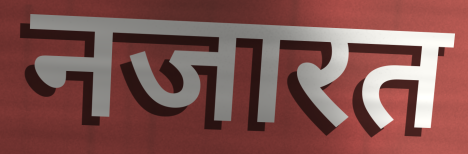
नजारत